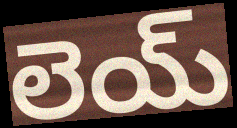
లెయ్